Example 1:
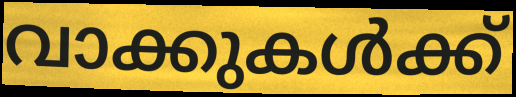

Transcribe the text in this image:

വാക്കുകൾക്ക്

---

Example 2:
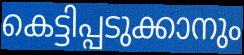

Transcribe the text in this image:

കെട്ടിപ്പടുക്കാനും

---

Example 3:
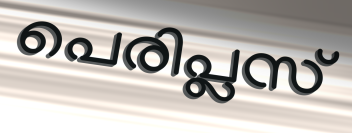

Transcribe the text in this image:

പെരിപ്ലസ്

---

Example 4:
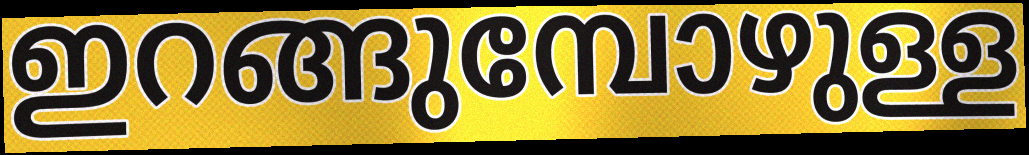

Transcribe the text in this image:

ഇറങ്ങുമ്പോഴുള്ള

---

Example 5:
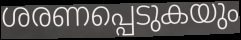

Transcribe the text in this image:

ശരണപ്പെടുകയും